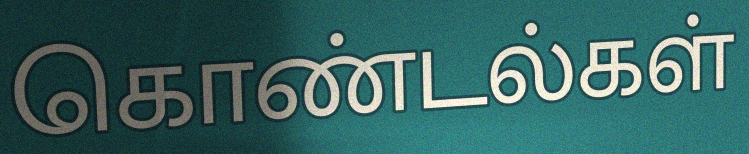
கொண்டல்கள்